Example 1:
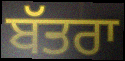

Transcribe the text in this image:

ਬੱਤਰਾ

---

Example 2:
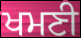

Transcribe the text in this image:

ਖਮਣੀ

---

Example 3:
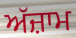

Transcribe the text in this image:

ਅੱਜ਼ਾਮ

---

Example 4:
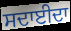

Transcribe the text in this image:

ਸਦਾਈਦਾ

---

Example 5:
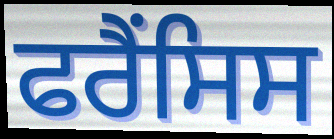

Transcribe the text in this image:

ਫਰੈਂਸਿਸ